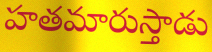
హతమారుస్తాడు